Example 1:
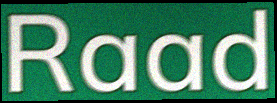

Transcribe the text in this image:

Raad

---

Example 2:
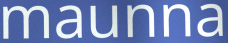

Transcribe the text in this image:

maunna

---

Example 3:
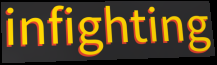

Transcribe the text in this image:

infighting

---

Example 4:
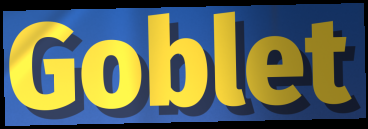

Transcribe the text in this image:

Goblet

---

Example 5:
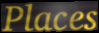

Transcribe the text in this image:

Places